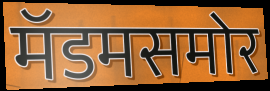
मॅडमसमोर